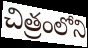
చిత్రంలోని